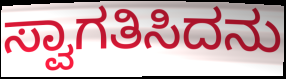
ಸ್ವಾಗತಿಸಿದನು